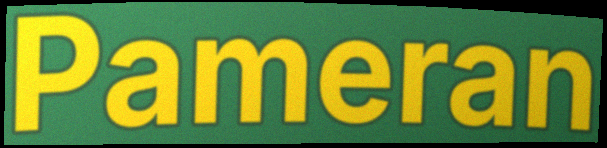
Pameran